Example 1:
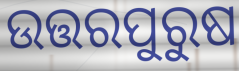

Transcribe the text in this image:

ଉତ୍ତରପୁରୁଷ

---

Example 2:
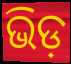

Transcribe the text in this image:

ଭିଡ଼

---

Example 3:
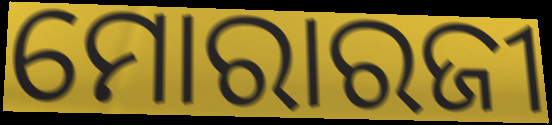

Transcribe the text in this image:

ମୋରାରଜୀ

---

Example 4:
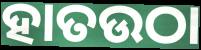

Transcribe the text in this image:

ହାତଉଠା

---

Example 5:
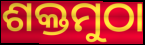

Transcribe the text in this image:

ଶକ୍ତମୁଠା